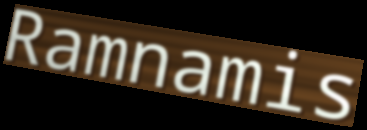
Ramnamis